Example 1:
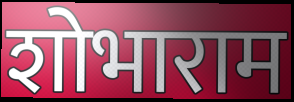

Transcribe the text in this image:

शोभाराम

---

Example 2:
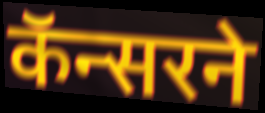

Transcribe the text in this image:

कॅन्सरने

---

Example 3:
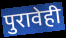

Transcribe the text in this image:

पुरावेही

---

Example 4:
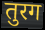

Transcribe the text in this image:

तुरग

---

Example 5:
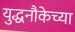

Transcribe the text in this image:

युद्धनौकेच्या